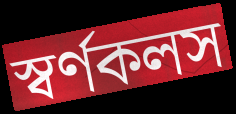
স্বর্ণকলস